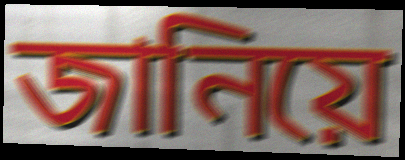
জানিয়ে